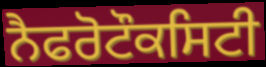
ਨੈਫਰੋਟੌਕਸਿਟੀ